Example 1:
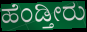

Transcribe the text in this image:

ಹೆಂಡ್ತೀರು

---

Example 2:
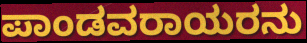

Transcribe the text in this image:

ಪಾಂಡವರಾಯರನು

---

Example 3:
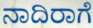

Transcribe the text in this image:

ನಾದಿರಾಗೆ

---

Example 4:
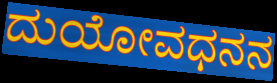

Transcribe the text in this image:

ದುಯೋವಧನನ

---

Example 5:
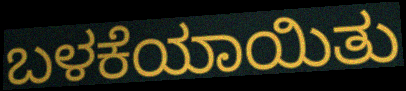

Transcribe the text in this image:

ಬಳಕೆಯಾಯಿತು